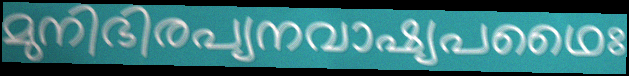
മുനിഭിരപ്യനവാഷ്യപഥൈഃ